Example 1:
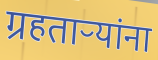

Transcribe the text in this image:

ग्रहताऱ्यांना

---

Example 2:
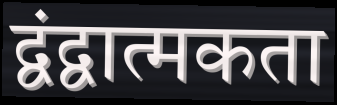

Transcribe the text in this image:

द्वंद्वात्मकता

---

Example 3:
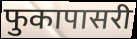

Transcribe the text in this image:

फुकापासरी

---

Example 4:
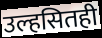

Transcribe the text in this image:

उल्हसितही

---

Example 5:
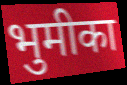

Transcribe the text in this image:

भुमीका